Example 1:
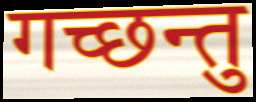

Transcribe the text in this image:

गच्छन्तु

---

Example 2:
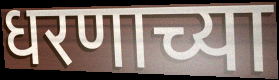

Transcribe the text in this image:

धरणाच्या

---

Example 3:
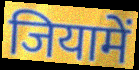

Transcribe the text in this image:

जियामें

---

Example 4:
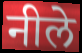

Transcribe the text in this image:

नीले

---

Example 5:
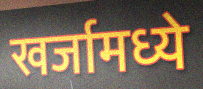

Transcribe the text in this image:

खर्जामध्ये